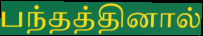
பந்தத்தினால்